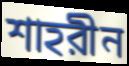
শাহরীন